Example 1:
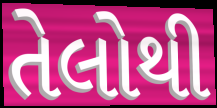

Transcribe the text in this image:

તેલોથી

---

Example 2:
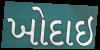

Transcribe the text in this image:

ખોદાઇ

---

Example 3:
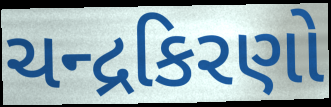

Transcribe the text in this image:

ચન્દ્રકિરણો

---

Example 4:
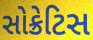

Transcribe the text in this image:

સોક્રેટિસ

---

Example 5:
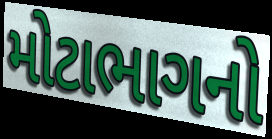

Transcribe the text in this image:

મોટાભાગનો